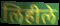
लिहीले